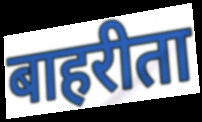
बाहरीता